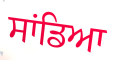
ਸਾਂਡਿਆ